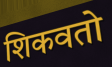
शिकवतो